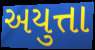
અયુત્તા